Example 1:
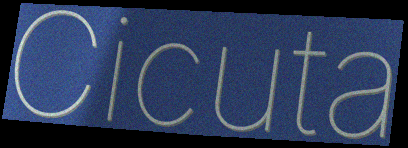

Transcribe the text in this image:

Cicuta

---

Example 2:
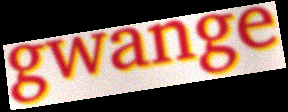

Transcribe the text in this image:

gwange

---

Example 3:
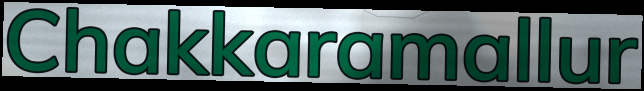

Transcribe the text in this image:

Chakkaramallur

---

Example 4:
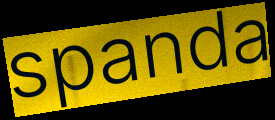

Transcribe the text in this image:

spanda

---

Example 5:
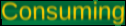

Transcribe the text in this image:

Consuming